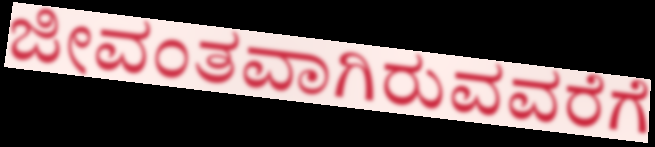
ಜೀವಂತವಾಗಿರುವವರೆಗೆ